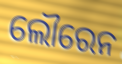
ଲୌରେନ